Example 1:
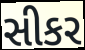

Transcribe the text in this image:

સીકર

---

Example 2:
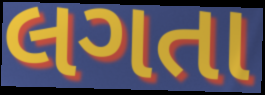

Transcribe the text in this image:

લગતા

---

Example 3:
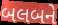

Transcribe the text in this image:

બલબને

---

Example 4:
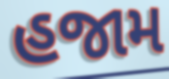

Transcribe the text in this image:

હજામ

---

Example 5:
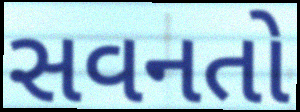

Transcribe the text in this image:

સવનતો